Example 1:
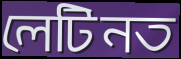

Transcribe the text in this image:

লেটিনত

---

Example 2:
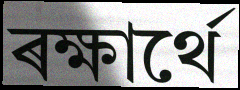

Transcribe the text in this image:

ৰক্ষাৰ্থে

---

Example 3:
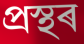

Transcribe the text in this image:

প্ৰস্থৰ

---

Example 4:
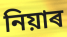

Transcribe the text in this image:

নিয়াৰ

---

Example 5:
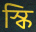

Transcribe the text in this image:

স্কি